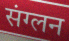
संग्लन